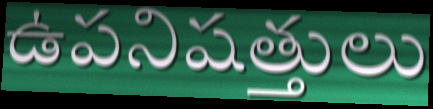
ఉపనిషత్తులు